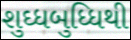
શુઘ્ધબુધ્ધિથી